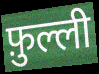
फ़ुल्ली